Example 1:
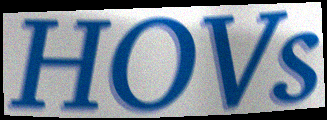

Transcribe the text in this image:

HOVs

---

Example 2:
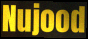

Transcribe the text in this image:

Nujood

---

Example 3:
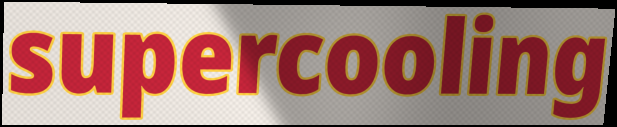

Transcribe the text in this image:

supercooling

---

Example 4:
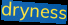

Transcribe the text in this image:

dryness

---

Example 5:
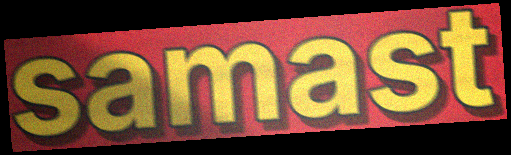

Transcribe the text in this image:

samast